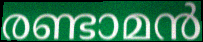
രണ്ടാമൻ